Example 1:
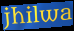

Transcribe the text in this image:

jhilwa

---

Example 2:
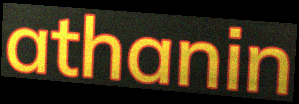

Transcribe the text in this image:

athanin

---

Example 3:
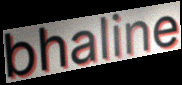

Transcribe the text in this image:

bhaline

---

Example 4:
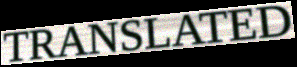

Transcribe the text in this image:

TRANSLATED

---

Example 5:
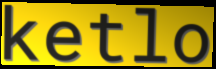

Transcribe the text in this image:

ketlo